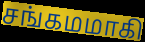
சங்கமமாகி